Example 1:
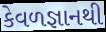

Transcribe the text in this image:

કેવળજ્ઞાનથી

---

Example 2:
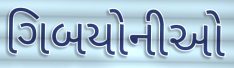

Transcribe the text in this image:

ગિબયોનીઓ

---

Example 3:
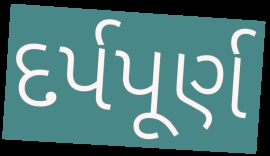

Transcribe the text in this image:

દર્પપૂર્ણ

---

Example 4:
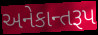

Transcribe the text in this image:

અનેકાન્તરૂપ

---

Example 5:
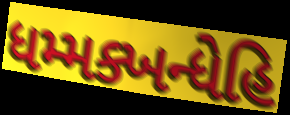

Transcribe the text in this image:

ધમ્મક્ખન્ધેહિ